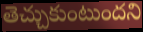
తెచ్చుకుంటుందని